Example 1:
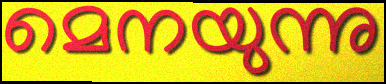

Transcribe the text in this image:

മെനയുന്നു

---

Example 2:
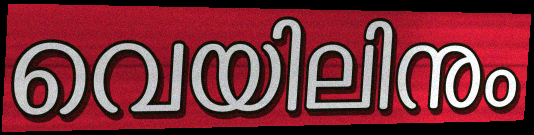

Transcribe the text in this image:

വെയിലിനും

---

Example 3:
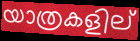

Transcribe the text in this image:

യാത്രകളില്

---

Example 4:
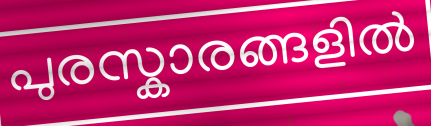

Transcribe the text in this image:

പുരസ്കാരങ്ങളിൽ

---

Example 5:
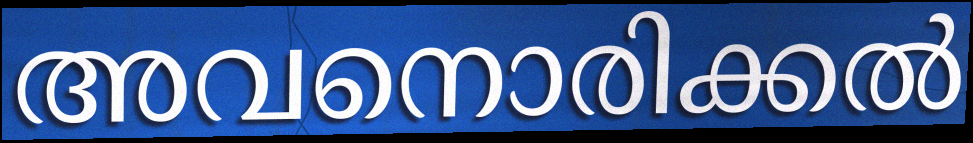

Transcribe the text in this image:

അവനൊരിക്കൽ